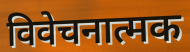
विवेचनात्मक